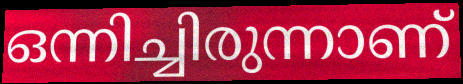
ഒന്നിച്ചിരുന്നാണ്